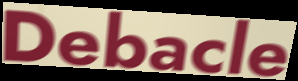
Debacle